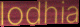
lodhia